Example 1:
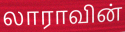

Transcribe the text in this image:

லாராவின்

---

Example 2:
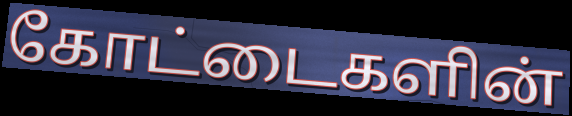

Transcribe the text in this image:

கோட்டைகளின்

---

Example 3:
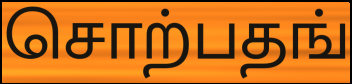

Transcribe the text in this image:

சொற்பதங்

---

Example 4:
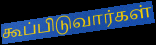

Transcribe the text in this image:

கூப்பிடுவார்கள்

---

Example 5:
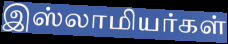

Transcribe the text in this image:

இஸ்லாமியர்கள்